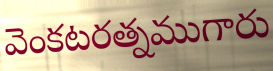
వెంకటరత్నముగారు